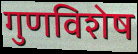
गुणविशेष